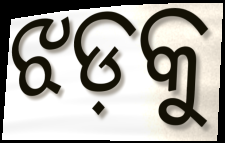
ଝଡ଼କୁ